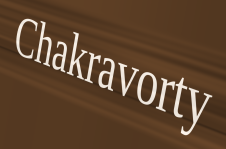
Chakravorty